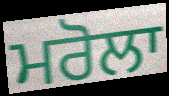
ਮਰੋਲਾ